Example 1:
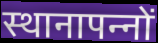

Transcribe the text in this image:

स्थानापन्नों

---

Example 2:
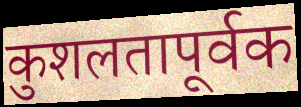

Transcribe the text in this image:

कुशलतापूर्वक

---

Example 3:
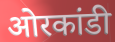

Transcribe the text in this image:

ओरकांडी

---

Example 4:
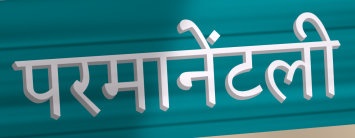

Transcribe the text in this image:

परमानेंटली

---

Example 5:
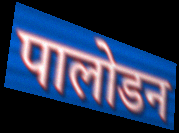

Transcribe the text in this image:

पालोडन